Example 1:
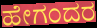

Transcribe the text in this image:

ಹೇಗಂದರ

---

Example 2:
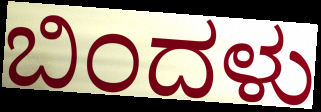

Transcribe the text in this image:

ಬಿಂದಳು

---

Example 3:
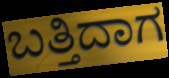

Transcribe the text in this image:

ಬತ್ತಿದಾಗ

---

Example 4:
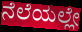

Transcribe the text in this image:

ನೆಲೆಯಲ್ಲೇ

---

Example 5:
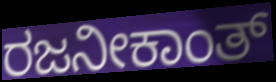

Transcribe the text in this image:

ರಜನೀಕಾಂತ್